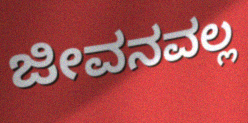
ಜೀವನವಲ್ಲ